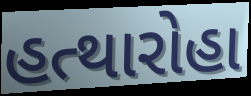
હત્થારોહા